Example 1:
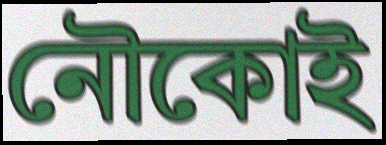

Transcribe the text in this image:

নৌকোই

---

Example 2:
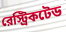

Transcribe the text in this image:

রেস্ট্রিকটেড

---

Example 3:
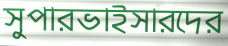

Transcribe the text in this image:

সুপারভাইসারদের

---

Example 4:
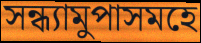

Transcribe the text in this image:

সন্ধ্যামুপাসমহে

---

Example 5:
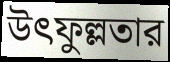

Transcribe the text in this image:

উৎফুল্লতার